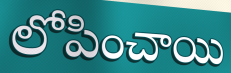
లోపించాయి